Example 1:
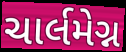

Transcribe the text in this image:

ચાર્લમેગ્ન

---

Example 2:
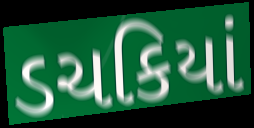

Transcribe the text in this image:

ડચકિયાં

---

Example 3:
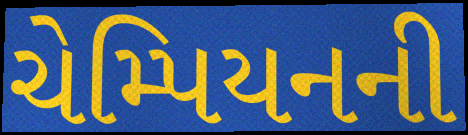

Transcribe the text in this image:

ચેમ્પિયનની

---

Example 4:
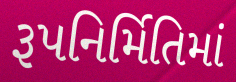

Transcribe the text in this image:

રૂપનિર્મિતિમાં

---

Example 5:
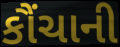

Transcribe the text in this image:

કૌંચાની